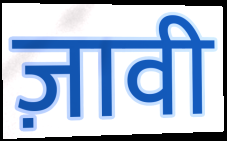
ज़ावी